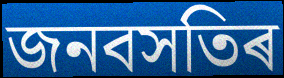
জনবসতিৰ